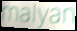
malyan